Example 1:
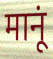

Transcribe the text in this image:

मानूं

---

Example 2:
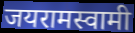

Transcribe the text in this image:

जयरामस्वामी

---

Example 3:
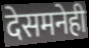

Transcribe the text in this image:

देसमनेही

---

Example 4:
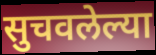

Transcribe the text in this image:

सुचवलेल्या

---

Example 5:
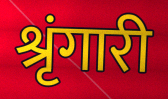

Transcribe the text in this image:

श्रृंगारी